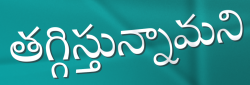
తగ్గిస్తున్నామని